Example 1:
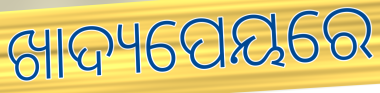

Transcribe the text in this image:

ଖାଦ୍ୟପେୟରେ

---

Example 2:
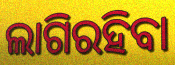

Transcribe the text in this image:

ଲାଗିରହିବା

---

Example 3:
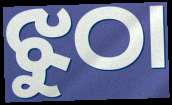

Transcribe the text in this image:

ଝୁଠା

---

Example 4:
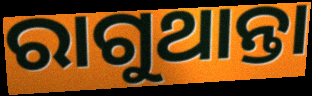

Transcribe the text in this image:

ରାଗୁଥାନ୍ତା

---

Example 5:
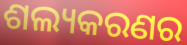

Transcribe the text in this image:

ଶଲ୍ୟକରଣର